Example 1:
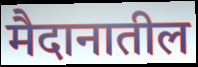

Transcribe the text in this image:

मैदानातील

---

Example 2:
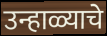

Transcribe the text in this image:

उन्हाळ्याचे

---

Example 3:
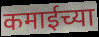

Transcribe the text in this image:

कमाईच्या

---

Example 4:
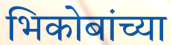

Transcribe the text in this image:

भिकोबांच्या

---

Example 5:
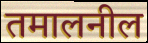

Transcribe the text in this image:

तमालनील